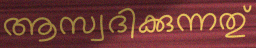
ആസ്വദിക്കുന്നതു്